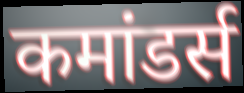
कमांडर्स